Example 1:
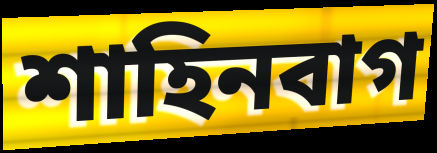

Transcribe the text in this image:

শাহিনবাগ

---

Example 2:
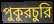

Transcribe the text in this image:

পুকুরচুরি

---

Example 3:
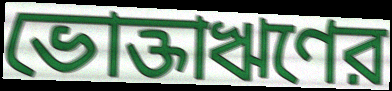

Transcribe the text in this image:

ভোক্তাঋণের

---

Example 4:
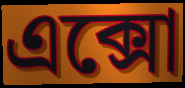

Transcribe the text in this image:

এক্সো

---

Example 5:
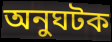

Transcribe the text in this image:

অনুঘটক